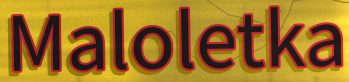
Maloletka